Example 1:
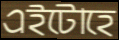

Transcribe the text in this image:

এইটোহে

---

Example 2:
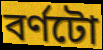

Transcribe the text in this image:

বৰ্ণটো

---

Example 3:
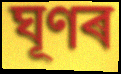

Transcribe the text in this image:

ঘূণৰ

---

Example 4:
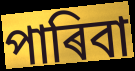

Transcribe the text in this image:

পাৰিবা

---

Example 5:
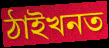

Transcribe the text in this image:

ঠাইখনত